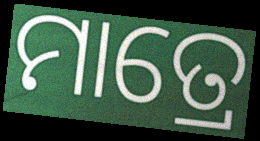
ମାତ୍ରେ